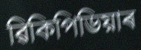
ৱিকিপিডিয়াৰ